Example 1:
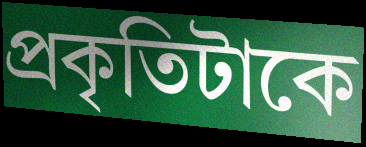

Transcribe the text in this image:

প্রকৃতিটাকে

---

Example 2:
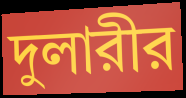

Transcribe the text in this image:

দুলারীর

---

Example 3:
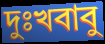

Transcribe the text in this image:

দুঃখবাবু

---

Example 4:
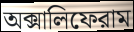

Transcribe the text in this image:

অক্সালিফেরাম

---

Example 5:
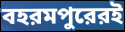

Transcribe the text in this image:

বহরমপুরেরই